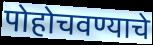
पोहोचवण्याचे